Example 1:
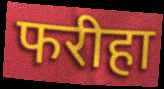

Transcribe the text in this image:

फरीहा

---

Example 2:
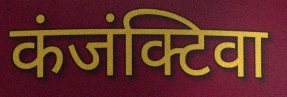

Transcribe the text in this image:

कंजंक्टिवा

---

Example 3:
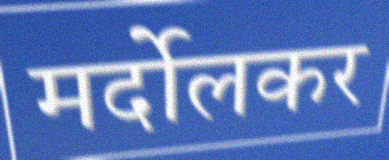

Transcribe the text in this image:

मर्दोलकर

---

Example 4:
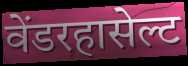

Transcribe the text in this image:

वेंडरहासेल्ट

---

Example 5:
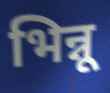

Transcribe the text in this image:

भिन्नू